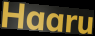
Haaru